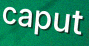
caput